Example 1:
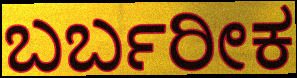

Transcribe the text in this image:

ಬರ್ಬರೀಕ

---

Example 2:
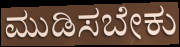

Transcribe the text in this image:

ಮುಡಿಸಬೇಕು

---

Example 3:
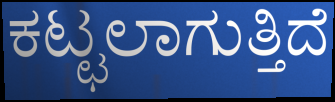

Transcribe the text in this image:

ಕಟ್ಟಲಾಗುತ್ತಿದೆ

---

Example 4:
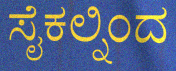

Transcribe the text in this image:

ಸೈಕಲ್ನಿಂದ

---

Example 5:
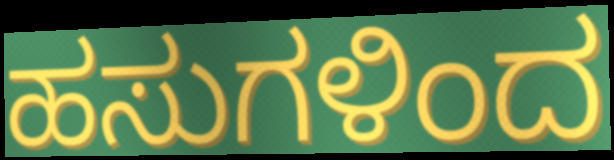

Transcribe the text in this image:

ಹಸುಗಳಿಂದ